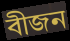
বীজন